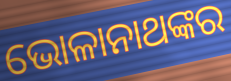
ଭୋଳାନାଥଙ୍କର